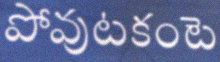
పోవుటకంటె